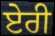
ਏਰੀ